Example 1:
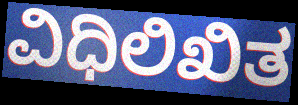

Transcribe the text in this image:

ವಿಧಿಲಿಖಿತ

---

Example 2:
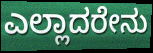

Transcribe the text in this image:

ಎಲ್ಲಾದರೇನು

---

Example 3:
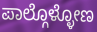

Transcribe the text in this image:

ಪಾಲ್ಗೊಳ್ಳೋಣ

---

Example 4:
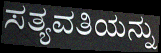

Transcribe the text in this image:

ಸತ್ಯವತಿಯನ್ನು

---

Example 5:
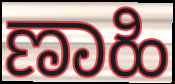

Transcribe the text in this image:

ಣಾಹಿ